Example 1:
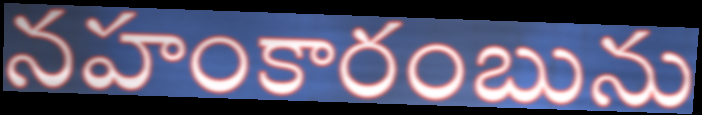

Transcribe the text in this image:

నహంకారంబును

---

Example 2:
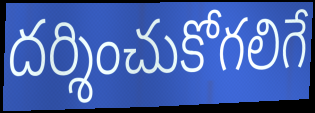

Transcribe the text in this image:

దర్శించుకోగలిగే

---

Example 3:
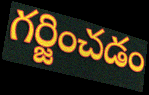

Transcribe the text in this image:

గర్జించడం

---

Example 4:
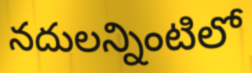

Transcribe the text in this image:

నదులన్నింటిలో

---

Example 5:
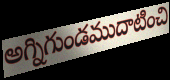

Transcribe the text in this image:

అగ్నిగుండముదాటించి